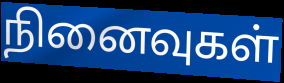
நினைவுகள்